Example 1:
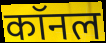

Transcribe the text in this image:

कॉनल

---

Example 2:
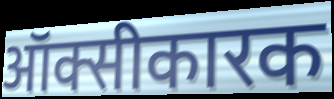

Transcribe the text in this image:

ऑक्सीकारक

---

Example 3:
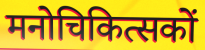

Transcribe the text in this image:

मनोचिकित्सकों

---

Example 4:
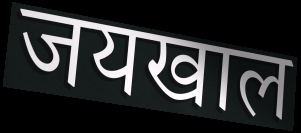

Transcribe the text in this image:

जयखाल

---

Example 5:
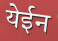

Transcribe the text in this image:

येईन